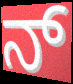
ನ್